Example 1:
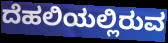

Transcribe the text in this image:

ದೆಹಲಿಯಲ್ಲಿರುವ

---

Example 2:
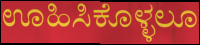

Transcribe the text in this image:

ಊಹಿಸಿಕೊಳ್ಳಲೂ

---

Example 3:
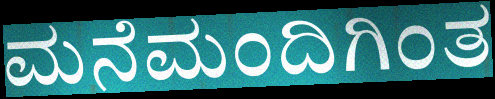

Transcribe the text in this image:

ಮನೆಮಂದಿಗಿಂತ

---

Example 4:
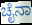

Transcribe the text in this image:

ಚೈನಾ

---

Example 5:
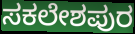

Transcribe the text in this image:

ಸಕಲೇಶಪುರ